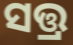
ସତ୍ତ୍ର